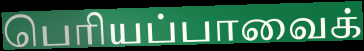
பெரியப்பாவைக்